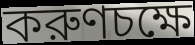
করুণচক্ষে